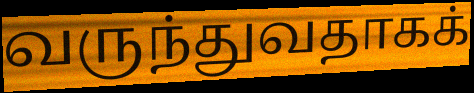
வருந்துவதாகக்